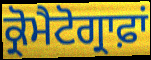
ਕ੍ਰੋਮੈਟੋਗ੍ਰਾਫ਼ਾਂ